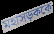
মহাসড়ককে